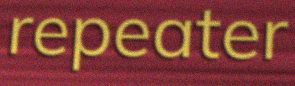
repeater